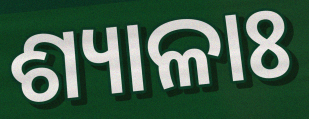
ଶ୍ୟାଳାଃ